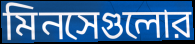
মিনসেগুলোর